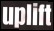
uplift